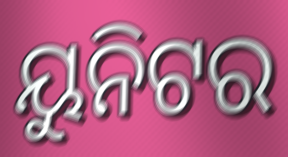
ୟୁନିଟର